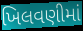
ખિલવણીમાં